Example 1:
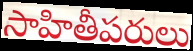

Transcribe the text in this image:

సాహితీపరులు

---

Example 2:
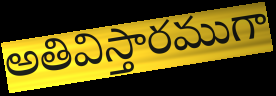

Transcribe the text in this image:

అతివిస్తారముగా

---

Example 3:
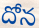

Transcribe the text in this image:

దోన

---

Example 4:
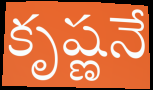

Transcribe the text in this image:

కృష్ణనే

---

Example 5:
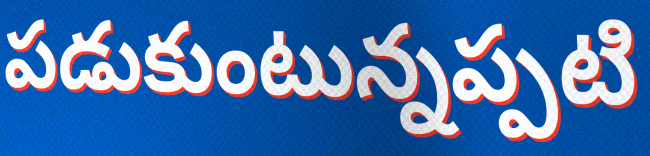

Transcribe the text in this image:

పడుకుంటున్నప్పటి